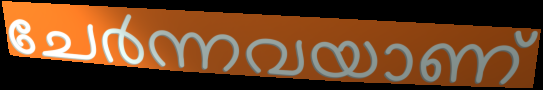
ചേർന്നവയാണ്